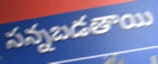
సన్నబడతాయి